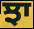
ਝਾ